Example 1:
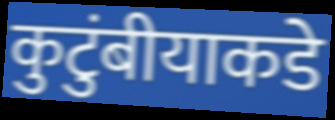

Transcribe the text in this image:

कुटुंबीयाकडे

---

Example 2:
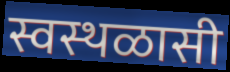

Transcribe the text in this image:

स्वस्थळासी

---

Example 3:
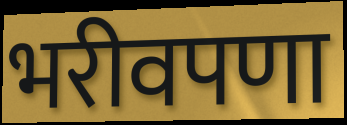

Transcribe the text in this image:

भरीवपणा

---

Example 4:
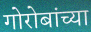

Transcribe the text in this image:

गोरोबांच्या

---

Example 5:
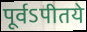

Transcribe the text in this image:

पूर्वऽपीतये